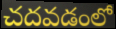
చదవడంలో